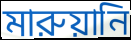
মারুয়ানি